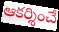
ఆకర్శించే